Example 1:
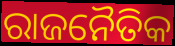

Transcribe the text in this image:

ରାଜନୈତିକ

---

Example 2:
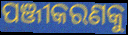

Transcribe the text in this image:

ପଞ୍ଜୀକରଣକୁ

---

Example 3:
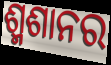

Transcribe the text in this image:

ଶ୍ମଶାନର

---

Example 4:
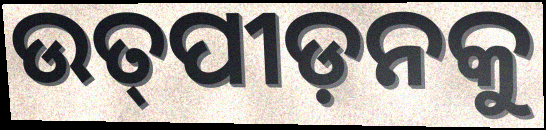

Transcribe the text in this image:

ଉତ୍‌ପୀଡ଼ନକୁ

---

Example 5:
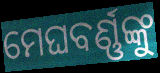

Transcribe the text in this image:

ମେଘବର୍ଣ୍ଣଙ୍କୁ